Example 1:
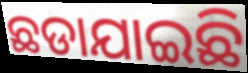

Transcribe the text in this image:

ଛଡାଯାଇଛି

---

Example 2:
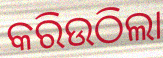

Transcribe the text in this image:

କରିଉଠିଲା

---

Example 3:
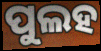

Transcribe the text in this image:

ପୁଲହ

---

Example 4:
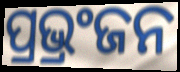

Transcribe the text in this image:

ପ୍ରଭ୍ରଂଜନ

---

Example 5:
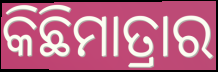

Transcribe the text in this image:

କିଛିମାତ୍ରାର